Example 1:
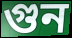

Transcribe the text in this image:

গুন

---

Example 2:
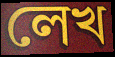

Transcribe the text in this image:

লেখ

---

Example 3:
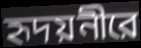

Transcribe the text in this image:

হৃদয়নীরে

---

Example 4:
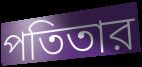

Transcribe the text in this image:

পতিতার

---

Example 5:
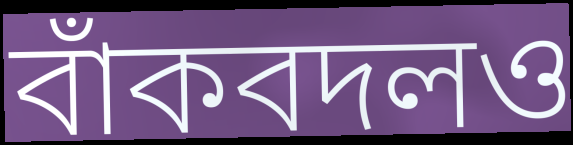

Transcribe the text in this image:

বাঁকবদলও